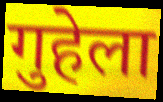
गुहेला